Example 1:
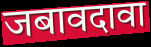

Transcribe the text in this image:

जबावदावा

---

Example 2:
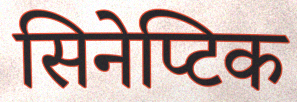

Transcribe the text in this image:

सिनेप्टिक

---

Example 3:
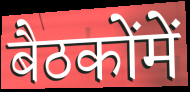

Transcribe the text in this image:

बैठकोंमें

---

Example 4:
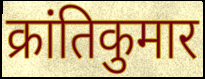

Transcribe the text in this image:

क्रांतिकुमार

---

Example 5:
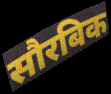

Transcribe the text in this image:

सौरबिक